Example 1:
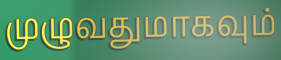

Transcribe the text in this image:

முழுவதுமாகவும்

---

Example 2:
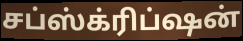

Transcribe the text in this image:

சப்ஸ்க்ரிப்ஷன்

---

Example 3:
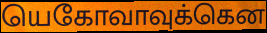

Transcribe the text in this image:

யெகோவாவுக்கென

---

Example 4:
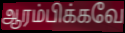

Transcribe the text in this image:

ஆரம்பிக்கவே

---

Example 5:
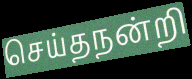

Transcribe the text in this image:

செய்தநன்றி